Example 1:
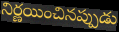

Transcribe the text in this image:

నిర్ణయించినప్పుడు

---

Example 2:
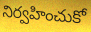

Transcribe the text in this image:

నిర్వహించుకో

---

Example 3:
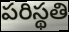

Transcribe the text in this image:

పరిస్థతి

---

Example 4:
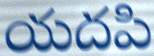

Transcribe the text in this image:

యదపి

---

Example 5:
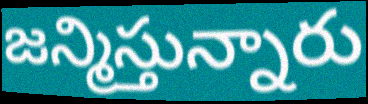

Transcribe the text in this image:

జన్మిస్తున్నారు